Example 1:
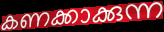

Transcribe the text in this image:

കണക്കാക്കുന്ന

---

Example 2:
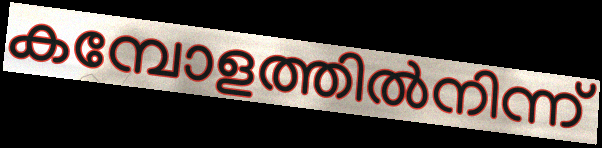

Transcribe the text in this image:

കമ്പോളത്തിൽനിന്ന്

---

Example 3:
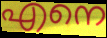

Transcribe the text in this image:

എനെ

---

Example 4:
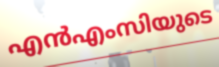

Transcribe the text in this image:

എൻഎംസിയുടെ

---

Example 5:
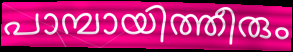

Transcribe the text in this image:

പാമ്പായിത്തീരും